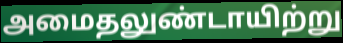
அமைதலுண்டாயிற்று